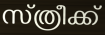
സ്‌ത്രീക്ക്